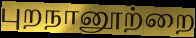
புறநானூற்றை